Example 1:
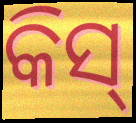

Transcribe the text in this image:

କିସ୍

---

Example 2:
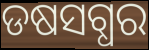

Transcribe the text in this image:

ଡଷସଗ୍ଧର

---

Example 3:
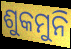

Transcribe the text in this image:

ଶୁକମୁନି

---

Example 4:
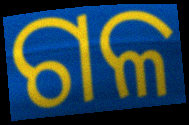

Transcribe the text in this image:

ଗଳ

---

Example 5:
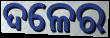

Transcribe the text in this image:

ଦଳେର